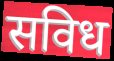
सविध